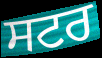
ਸਟਰ